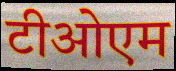
टीओएम